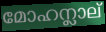
മോഹന്ലാല്